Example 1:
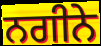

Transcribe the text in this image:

ਨਗੀਨੇ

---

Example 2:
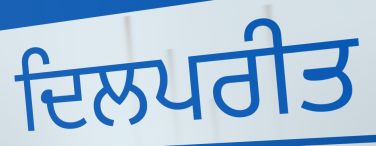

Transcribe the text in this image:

ਦਿਲਪਰੀਤ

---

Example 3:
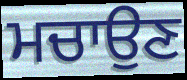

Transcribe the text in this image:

ਮਚਾਉਣ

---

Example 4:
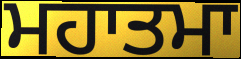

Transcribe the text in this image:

ਮਹਾਤਮਾ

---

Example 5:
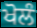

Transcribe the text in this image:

ਖੋਲੰ